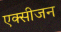
एक्सीजन